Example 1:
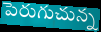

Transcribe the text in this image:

పెరుగుచున్న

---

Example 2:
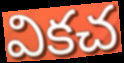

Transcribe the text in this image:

వికచ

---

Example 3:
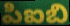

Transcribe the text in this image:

పిఐబి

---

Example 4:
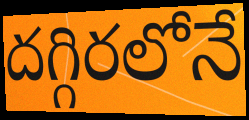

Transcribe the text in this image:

దగ్గిరలోనే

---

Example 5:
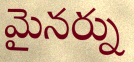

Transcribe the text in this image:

మైనర్ను